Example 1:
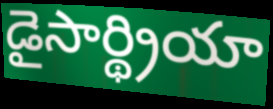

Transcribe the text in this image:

డైసార్థ్రియా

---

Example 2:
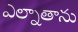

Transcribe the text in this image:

ఎల్నాతాను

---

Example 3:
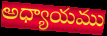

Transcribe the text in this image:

అధ్యాయము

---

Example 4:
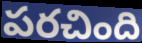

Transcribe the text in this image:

పరచింది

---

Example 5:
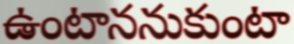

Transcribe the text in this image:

ఉంటాననుకుంటా